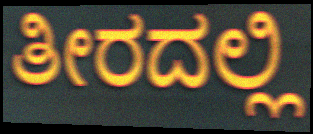
ತೀರದಲ್ಲಿ